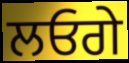
ਲਓਗੇ